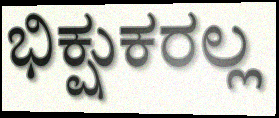
ಭಿಕ್ಷುಕರಲ್ಲ